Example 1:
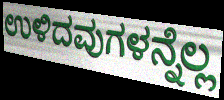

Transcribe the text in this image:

ಉಳಿದವುಗಳನ್ನೆಲ್ಲ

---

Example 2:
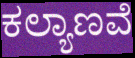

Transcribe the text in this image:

ಕಲ್ಯಾಣವೆ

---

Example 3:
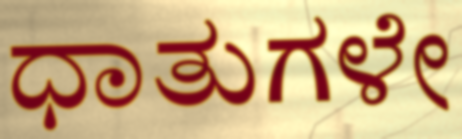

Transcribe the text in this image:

ಧಾತುಗಳೇ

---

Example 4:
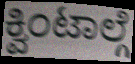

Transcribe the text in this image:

ಕ್ವಿಂಟಾಲ್ಗೆ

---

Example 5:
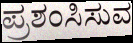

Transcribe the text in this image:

ಪ್ರಶಂಸಿಸುವ